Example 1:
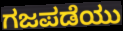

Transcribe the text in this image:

ಗಜಪಡೆಯು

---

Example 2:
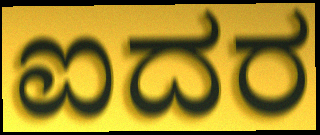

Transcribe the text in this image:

ಐದರ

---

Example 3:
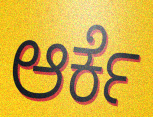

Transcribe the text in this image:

ಆರ್ಕೆ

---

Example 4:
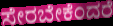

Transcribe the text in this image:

ಸೇರಬೇಕೆಂದರೆ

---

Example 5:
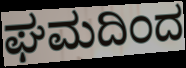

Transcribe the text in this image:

ಘಮದಿಂದ